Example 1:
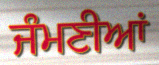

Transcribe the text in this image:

ਜੰਮਣੀਆਂ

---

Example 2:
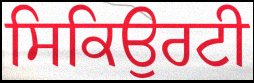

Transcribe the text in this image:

ਸਿਕਿਉਰਟੀ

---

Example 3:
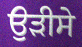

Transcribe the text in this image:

ਉੜੀਸੇ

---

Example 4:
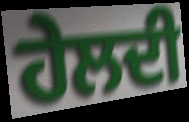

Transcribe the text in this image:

ਹੇਲਦੀ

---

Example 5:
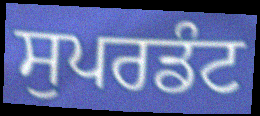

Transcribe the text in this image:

ਸੁਪਰਡੰਟ